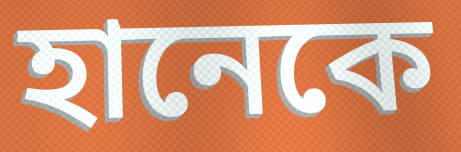
হানেকে